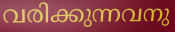
വരിക്കുന്നവനു